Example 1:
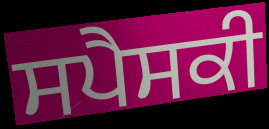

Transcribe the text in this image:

ਸਪੈਸਕੀ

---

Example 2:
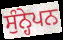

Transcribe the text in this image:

ਸੁੰਨ੍ਹੇਪਨ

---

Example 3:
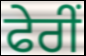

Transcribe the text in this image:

ਫੇਰੀਂ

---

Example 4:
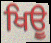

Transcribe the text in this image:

ਖਿਊ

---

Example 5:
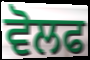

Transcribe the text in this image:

ਵੋਲਫ